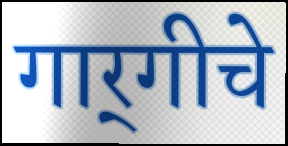
गार्गीचे